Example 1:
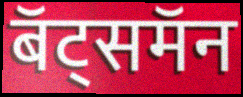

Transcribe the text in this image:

बॅट्समॅन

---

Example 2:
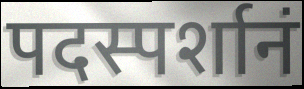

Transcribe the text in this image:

पदस्पर्शानं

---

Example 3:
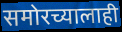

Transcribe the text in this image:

समोरच्यालाही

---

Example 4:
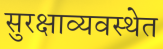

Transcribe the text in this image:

सुरक्षाव्यवस्थेत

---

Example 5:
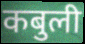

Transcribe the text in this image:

कबुली